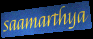
saamarthya